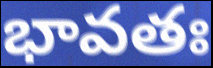
భావతః